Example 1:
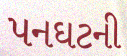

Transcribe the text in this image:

પનઘટની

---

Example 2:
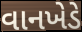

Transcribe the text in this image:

વાનખેડે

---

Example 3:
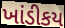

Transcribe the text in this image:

ખાંડીકય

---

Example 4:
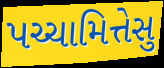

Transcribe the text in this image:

પચ્ચામિત્તેસુ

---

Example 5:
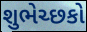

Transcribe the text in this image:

શુભેચ્છકો